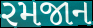
રમજાન